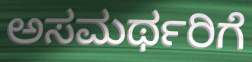
ಅಸಮರ್ಥರಿಗೆ